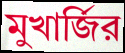
মুখার্জির